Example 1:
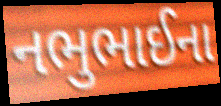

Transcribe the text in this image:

નભુભાઈના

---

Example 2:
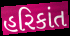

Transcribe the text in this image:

હરિકાંત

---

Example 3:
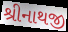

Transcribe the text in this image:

શ્રીનાથજી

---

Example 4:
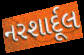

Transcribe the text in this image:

નરશાર્દૂલ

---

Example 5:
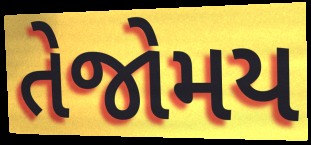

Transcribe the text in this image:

તેજોમય